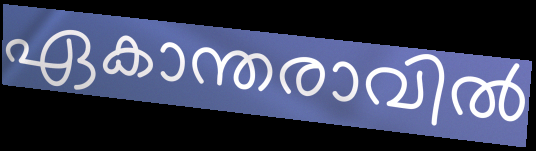
ഏകാന്തരാവിൽ